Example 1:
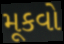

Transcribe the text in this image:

મૂકવો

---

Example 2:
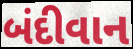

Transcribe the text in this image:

બંદીવાન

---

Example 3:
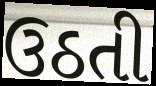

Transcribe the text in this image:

ઉઠતી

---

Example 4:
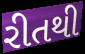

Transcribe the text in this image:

રીતથી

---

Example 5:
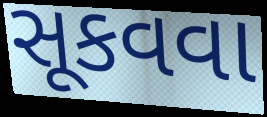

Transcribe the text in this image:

સૂકવવા